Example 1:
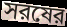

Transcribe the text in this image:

সরষের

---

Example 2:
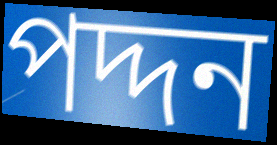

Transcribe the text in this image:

পদ্দন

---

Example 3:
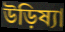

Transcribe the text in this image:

উড়িষ্যা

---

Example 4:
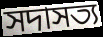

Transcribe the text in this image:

সদাসত্য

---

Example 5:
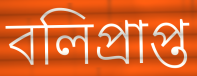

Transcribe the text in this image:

বলিপ্রাপ্ত